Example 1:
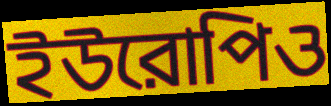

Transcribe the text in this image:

ইউরোপিও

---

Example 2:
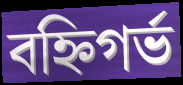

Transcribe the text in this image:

বহ্নিগর্ভ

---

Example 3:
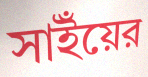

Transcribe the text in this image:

সাইঁয়ের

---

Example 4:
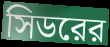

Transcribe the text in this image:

সিডরের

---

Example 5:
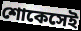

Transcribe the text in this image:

শোকেসেই